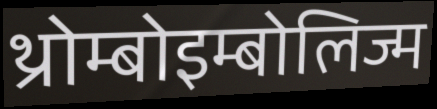
थ्रोम्बोइम्बोलिज्म